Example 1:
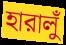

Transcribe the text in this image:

হারালুঁ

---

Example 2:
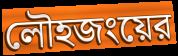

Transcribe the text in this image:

লৌহজংয়ের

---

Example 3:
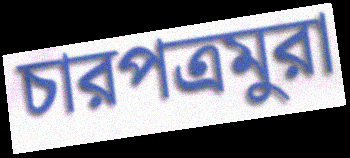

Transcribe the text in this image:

চারপত্রমুরা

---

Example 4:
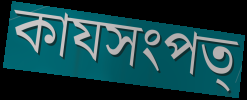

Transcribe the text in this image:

কাযসংপত্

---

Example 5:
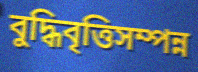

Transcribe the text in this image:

বুদ্ধিবৃত্তিসম্পন্ন